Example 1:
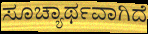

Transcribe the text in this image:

ಸೂಚ್ಯಾರ್ಥವಾಗಿದೆ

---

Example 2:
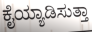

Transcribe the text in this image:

ಕೈಯ್ಯಾಡಿಸುತ್ತಾ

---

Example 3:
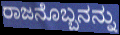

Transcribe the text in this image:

ರಾಜನೊಬ್ಬನನ್ನು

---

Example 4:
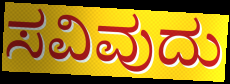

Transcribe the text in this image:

ಸವಿವುದು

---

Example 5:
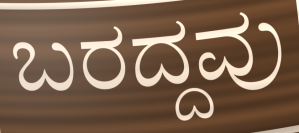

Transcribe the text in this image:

ಬರದ್ದವು